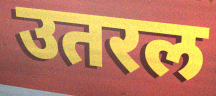
उतरल